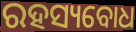
ରହସ୍ୟବୋଧ